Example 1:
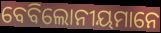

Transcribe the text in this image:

ବେବିଲୋନୀୟମାନେ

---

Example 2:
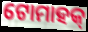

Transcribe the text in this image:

ଟୋମାହକ୍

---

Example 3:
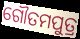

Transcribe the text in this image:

ଗୌତମପୁତ୍ର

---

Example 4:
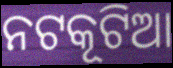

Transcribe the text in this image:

ନଟକୂଟିଆ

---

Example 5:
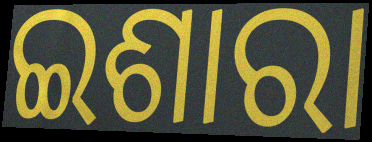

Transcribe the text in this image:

ଇଶାରା